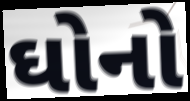
ઘોનો